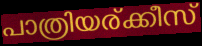
പാത്രിയര്ക്കീസ്